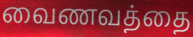
வைணவத்தை